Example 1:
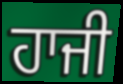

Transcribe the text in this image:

ਹਾਜੀ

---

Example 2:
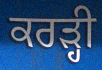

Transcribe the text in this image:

ਕਰੜ੍ਹੀ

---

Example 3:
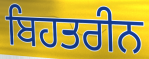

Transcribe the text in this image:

ਬਿਹਤਰੀਨ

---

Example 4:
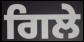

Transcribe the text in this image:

ਗਿਲੇ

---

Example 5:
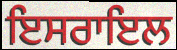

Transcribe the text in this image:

ਇਸਰਾਇਲ